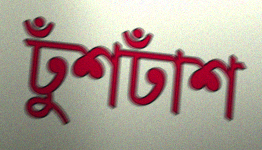
ঢুঁশঢাঁশ